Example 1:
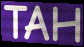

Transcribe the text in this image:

TAH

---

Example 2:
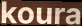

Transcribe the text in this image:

koura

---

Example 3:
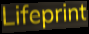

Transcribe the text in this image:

Lifeprint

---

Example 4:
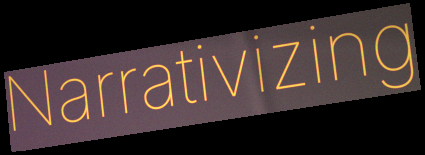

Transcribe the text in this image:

Narrativizing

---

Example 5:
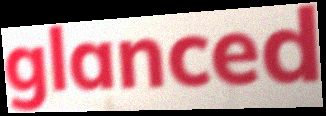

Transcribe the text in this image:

glanced